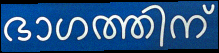
ഭാഗത്തിന്